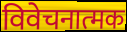
विवेचनात्‍मक